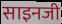
साइनजी